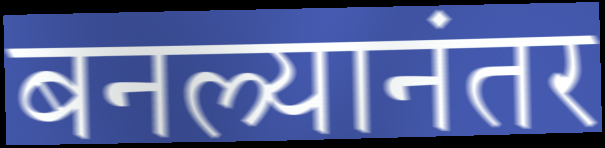
बनल्यानंतर